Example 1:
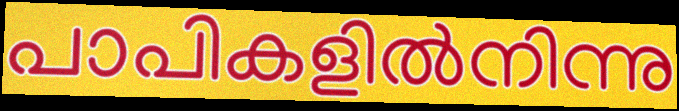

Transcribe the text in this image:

പാപികളിൽനിന്നു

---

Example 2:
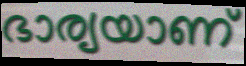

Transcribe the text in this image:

ഭാര്യയാണ്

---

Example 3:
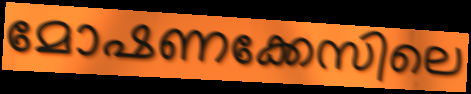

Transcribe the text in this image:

മോഷണക്കേസിലെ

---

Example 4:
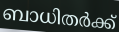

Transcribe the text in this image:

ബാധിതർക്ക്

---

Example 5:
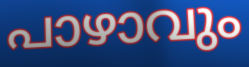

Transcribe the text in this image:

പാഴാവും